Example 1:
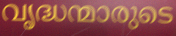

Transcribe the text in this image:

വൃദ്ധന്മാരുടെ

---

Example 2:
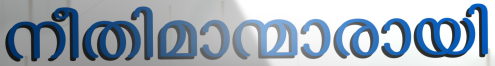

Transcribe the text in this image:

നീതിമാന്മാരായി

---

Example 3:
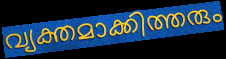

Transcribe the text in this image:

വ്യക്തമാക്കിത്തരും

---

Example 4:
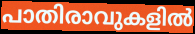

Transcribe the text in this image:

പാതിരാവുകളിൽ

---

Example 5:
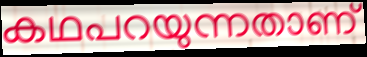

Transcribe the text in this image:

കഥപറയുന്നതാണ്